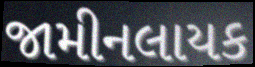
જામીનલાયક